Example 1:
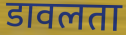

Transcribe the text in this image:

डावलता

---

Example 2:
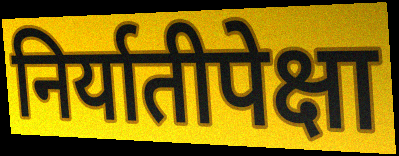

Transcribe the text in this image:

निर्यातीपेक्षा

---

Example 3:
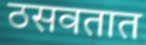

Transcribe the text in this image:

ठसवतात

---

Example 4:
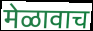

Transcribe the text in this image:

मेळावाच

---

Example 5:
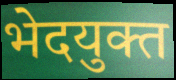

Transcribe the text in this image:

भेदयुक्त